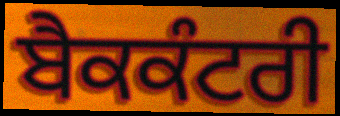
ਬੈਕਕੰਟਰੀ